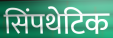
सिंपथेटिक